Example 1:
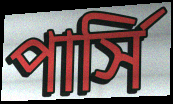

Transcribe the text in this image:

পার্সি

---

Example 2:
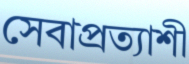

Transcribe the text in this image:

সেবাপ্রত্যাশী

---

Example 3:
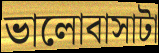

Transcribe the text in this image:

ভালোবাসাটা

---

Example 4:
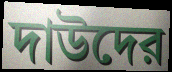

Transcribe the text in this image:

দাউদের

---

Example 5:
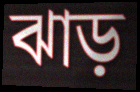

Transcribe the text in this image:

ঝাড়